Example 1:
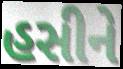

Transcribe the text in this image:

હસીને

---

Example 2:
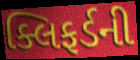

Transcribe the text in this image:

ક્લિફર્ડની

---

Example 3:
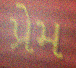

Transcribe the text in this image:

પ્રેમ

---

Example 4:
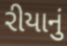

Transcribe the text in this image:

રીયાનું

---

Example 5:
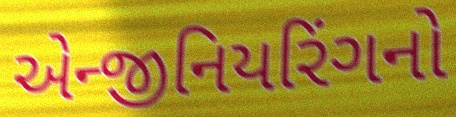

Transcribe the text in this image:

એન્જીનિયરિંગનો